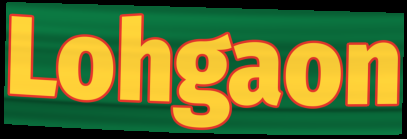
Lohgaon